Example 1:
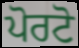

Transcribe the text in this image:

ਪੋਰਟੋ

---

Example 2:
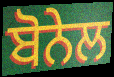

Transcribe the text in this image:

ਬੋਨੇਲ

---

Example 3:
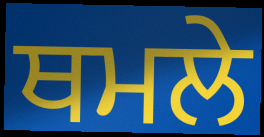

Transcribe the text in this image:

ਥਮਲੇ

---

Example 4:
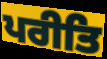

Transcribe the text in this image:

ਪਰੀਤਿ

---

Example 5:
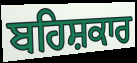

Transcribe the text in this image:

ਬਹਿਸ਼ਕਾਰ